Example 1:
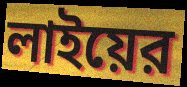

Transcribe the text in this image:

লাইয়ের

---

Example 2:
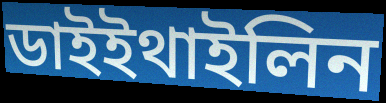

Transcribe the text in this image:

ডাইইথাইলিন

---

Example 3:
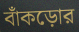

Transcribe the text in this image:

বাঁকড়োর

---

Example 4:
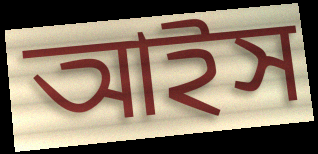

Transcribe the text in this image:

আইস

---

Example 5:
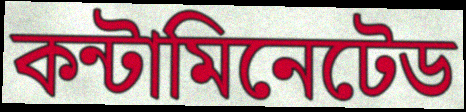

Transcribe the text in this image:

কন্টামিনেটেড